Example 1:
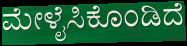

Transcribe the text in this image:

ಮೇಳೈಸಿಕೊಂಡಿದೆ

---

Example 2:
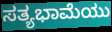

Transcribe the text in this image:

ಸತ್ಯಭಾಮೆಯು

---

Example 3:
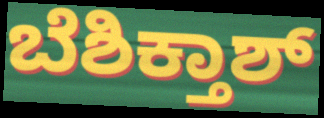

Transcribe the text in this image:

ಬೆಶಿಕ್ತಾಶ್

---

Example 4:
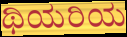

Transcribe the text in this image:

ಥಿಯರಿಯ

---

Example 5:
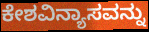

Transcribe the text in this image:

ಕೇಶವಿನ್ಯಾಸವನ್ನು